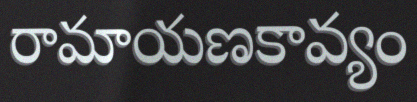
రామాయణకావ్యం